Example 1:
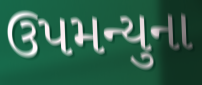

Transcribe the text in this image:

ઉપમન્યુના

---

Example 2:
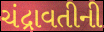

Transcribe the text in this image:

ચંદ્રાવતીની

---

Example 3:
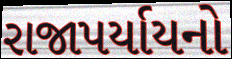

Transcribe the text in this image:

રાજાપર્યાયનો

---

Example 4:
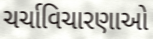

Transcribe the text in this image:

ચર્ચાવિચારણાઓ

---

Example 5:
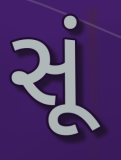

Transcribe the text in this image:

સૂં